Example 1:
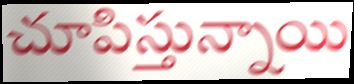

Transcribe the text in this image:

చూపిస్తున్నాయి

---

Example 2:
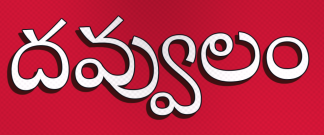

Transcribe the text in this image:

దవ్వులం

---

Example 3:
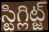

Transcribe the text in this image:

స్టిగ్లిట్జ్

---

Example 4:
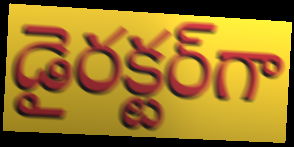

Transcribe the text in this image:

డైరక్టర్‌గా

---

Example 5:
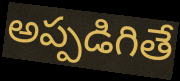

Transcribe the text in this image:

అప్పడిగితే